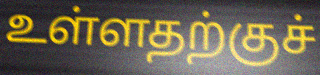
உள்ளதற்குச்